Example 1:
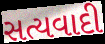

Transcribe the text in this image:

સત્યવાદી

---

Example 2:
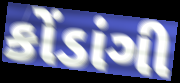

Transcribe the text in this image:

કોંડાંગી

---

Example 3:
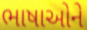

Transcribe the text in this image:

ભાષાઓને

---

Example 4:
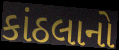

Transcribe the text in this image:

કાંઠલાનો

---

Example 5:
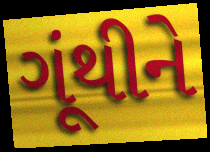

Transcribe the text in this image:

ગૂંથીને